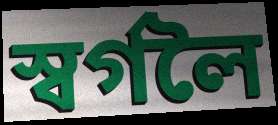
স্বৰ্গলৈ